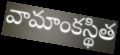
వామాంకస్థిత